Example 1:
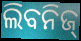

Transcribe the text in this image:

ଲିବନିଜ୍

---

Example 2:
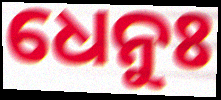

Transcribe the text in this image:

ଧେନୁଃ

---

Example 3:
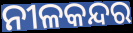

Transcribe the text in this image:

ନୀଳକନ୍ଦର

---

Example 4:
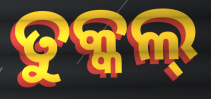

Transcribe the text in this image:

ତୁକ୍କଲ୍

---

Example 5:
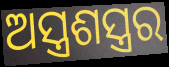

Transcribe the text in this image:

ଅସ୍ତ୍ରଶସ୍ତ୍ରର